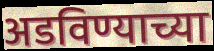
अडविण्याच्या